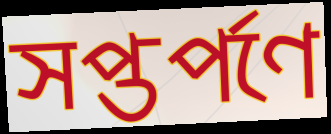
সপ্তর্পণে